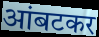
आंबटकर